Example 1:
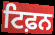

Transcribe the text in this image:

ਟਿਫ਼ਨ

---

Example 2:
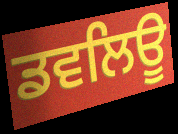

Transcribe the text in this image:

ਡਵਲਿਊ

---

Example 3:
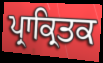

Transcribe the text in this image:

ਪ੍ਰਾਕ੍ਰਿਤਕ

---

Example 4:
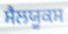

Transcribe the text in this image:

ਸੈਲਯੂਕਸ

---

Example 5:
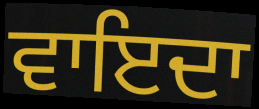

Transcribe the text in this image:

ਵਾਇਦਾ